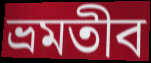
ভ্রমতীব